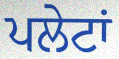
ਪਲੇਟਾਂ